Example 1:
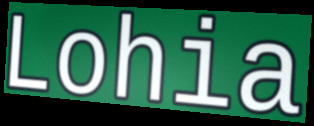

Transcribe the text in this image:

Lohia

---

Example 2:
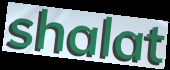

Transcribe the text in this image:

shalat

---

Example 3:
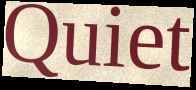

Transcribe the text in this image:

Quiet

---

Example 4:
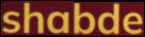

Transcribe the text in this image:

shabde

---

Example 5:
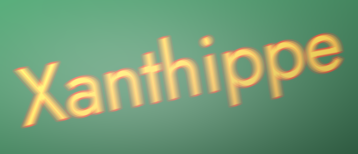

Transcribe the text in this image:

Xanthippe